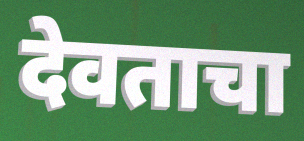
देवताचा